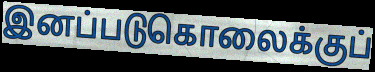
இனப்படுகொலைக்குப்